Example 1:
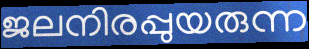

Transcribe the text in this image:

ജലനിരപ്പുയരുന്ന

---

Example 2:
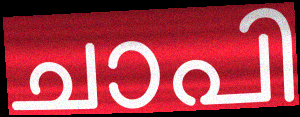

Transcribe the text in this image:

ചാപി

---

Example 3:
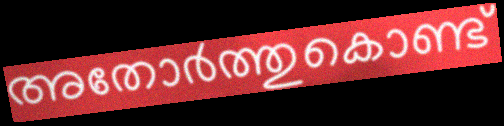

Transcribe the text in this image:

അതോർത്തുകൊണ്ട്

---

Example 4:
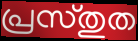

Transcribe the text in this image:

പ്രസ്തുത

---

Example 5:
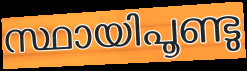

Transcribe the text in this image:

സ്ഥായിപൂണ്ടു